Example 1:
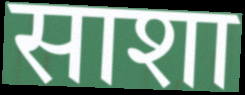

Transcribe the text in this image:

साशा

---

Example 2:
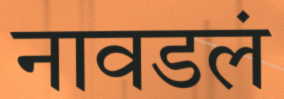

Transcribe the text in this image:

नावडलं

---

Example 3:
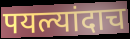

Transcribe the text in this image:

पयल्यांदाच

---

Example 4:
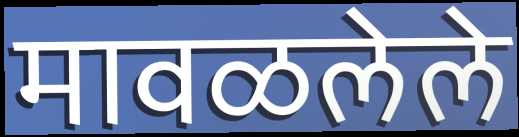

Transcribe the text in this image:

मावळलेले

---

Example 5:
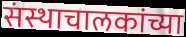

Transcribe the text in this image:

संस्थाचालकांच्या